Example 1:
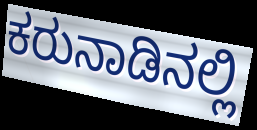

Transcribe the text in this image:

ಕರುನಾಡಿನಲ್ಲಿ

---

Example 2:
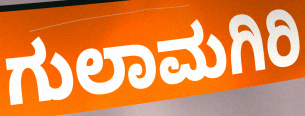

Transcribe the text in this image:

ಗುಲಾಮಗಿರಿ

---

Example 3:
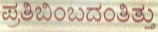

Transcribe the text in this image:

ಪ್ರತಿಬಿಂಬದಂತಿತ್ತು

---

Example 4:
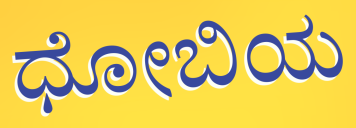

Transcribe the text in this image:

ಧೋಬಿಯ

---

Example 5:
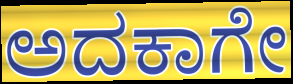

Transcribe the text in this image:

ಅದಕಾಗೇ